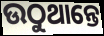
ଉଠୁଥାନ୍ତେ